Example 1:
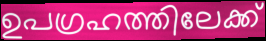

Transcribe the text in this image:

ഉപഗ്രഹത്തിലേക്ക്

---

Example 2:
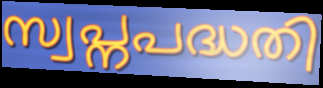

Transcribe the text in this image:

സ്വപ്നപദ്ധതി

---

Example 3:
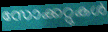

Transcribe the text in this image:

സോക്കറ്റുകൾ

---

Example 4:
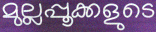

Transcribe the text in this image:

മുല്ലപ്പൂക്കളുടെ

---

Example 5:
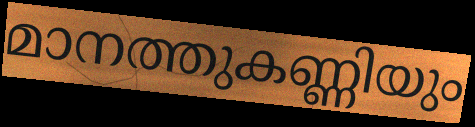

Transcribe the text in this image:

മാനത്തുകണ്ണിയും